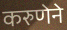
करुणेने